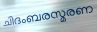
ചിദംബരസ്മരണ